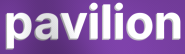
pavilion